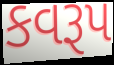
કવરૂપ